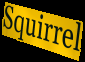
Squirrel